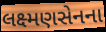
લક્ષ્મણસેનના